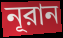
নূরান